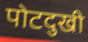
पोटदुखी